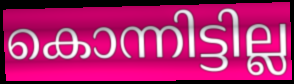
കൊന്നിട്ടില്ല